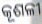
କୂଶଳୀ